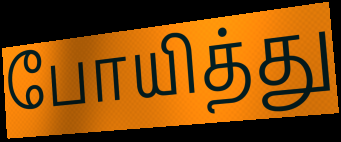
போயித்து